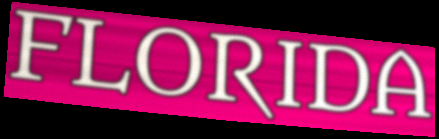
FLORIDA